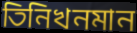
তিনিখনমান